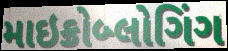
માઇક્રોબ્લોગિંગ